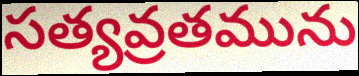
సత్యవ్రతమును